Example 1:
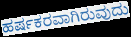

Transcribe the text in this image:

ಹರ್ಷಕರವಾಗಿರುವುದು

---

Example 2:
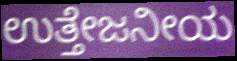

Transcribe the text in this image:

ಉತ್ತೇಜನೀಯ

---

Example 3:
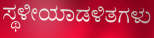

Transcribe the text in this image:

ಸ್ಥಳೀಯಾಡಳಿತಗಳು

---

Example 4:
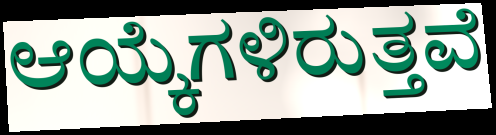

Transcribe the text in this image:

ಆಯ್ಕೆಗಳಿರುತ್ತವೆ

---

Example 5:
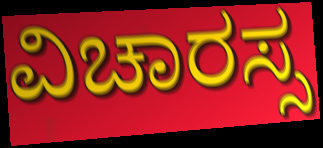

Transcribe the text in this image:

ವಿಚಾರಸ್ಸ